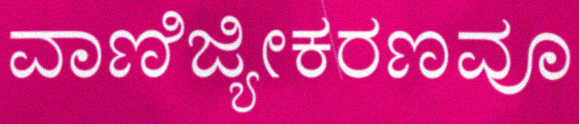
ವಾಣಿಜ್ಯೀಕರಣವೂ